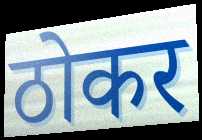
ठोकर